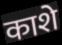
काशे